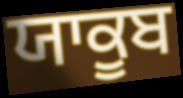
ਯਾਕੂਬ